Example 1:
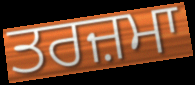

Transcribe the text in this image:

ਤਰਜ਼ਮਾ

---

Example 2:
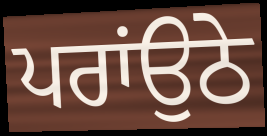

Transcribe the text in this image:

ਪਰਾਂਉਠੇ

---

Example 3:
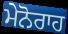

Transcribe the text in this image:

ਮੇਨੋਰਾਹ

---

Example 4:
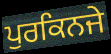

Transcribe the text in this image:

ਪੁਰਕਿਨਜੇ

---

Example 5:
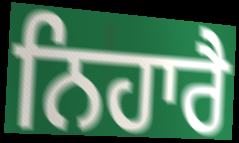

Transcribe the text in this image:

ਨਿਹਾਰੈ